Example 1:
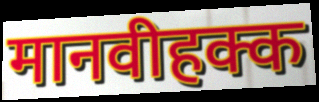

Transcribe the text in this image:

मानवीहक्क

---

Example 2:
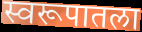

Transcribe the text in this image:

स्वरूपातला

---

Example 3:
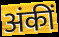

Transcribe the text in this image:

अंकीं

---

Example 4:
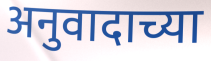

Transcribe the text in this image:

अनुवादाच्या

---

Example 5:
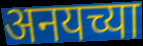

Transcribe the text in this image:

अनयच्या